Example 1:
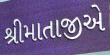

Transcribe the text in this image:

શ્રીમાતાજીએ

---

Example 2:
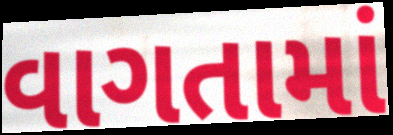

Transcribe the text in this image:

વાગતામાં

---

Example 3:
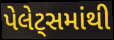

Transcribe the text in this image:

પેલેટ્સમાંથી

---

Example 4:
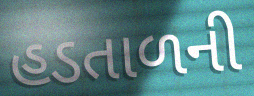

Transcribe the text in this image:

હડતાળની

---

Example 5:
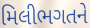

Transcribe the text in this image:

મિલીભગતને